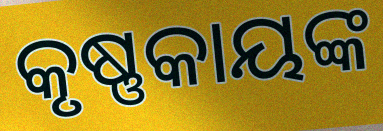
କୃଷ୍ଣକାୟଙ୍କ